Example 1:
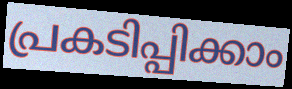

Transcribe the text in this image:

പ്രകടിപ്പിക്കാം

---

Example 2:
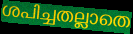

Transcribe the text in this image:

ശപിച്ചതല്ലാതെ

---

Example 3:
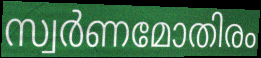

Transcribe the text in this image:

സ്വർണമോതിരം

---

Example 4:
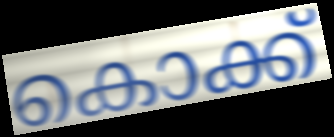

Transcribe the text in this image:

കൊക്ക്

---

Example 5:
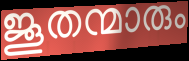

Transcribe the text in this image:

ജൂതന്മാരും